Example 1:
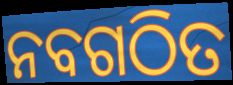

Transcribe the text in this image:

ନବଗଠିତ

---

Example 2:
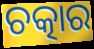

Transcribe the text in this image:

ଚତ୍କାର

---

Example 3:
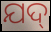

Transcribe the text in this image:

ଯଦ୍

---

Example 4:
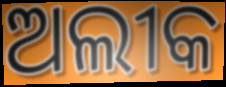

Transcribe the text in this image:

ଅଲୀକ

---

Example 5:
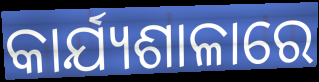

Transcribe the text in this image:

କାର୍ଯ୍ୟଶାଳାରେ